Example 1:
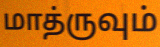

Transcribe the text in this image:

மாத்ருவும்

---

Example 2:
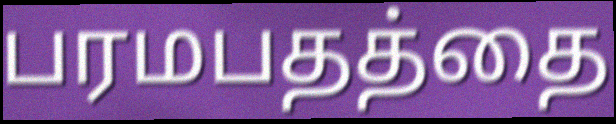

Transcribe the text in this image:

பரமபதத்தை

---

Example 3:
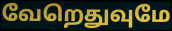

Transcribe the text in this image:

வேறெதுவுமே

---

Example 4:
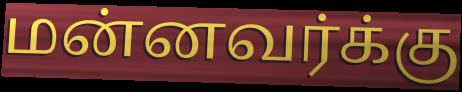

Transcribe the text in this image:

மன்னவர்க்கு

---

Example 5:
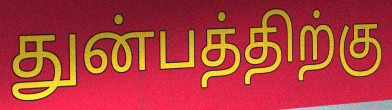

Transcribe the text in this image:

துன்பத்திற்கு